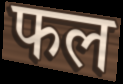
फल